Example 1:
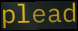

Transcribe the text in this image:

plead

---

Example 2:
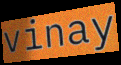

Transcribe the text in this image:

vinay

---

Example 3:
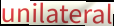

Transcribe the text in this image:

unilateral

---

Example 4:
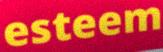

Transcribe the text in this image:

esteem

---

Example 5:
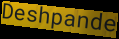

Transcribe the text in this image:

Deshpande